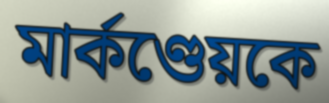
মার্কণ্ডেয়কে